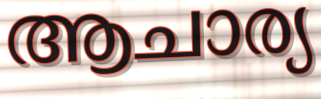
ആചാര്യ